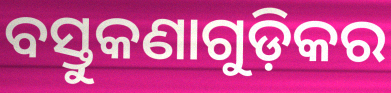
ବସ୍ତୁକଣାଗୁଡ଼ିକର